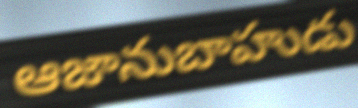
ఆజానుబాహుడు